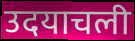
उदयाचली